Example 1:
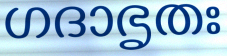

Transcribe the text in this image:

ഗദാഭൃതഃ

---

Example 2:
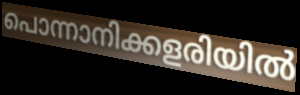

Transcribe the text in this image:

പൊന്നാനിക്കളരിയിൽ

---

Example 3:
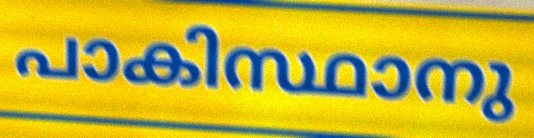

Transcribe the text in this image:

പാകിസ്ഥാനു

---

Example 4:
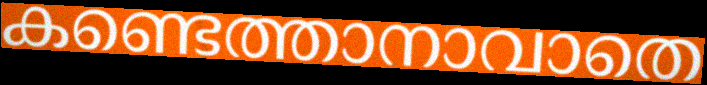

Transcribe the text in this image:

കണ്ടെത്താനാവാതെ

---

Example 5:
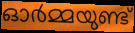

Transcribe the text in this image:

ഓർമ്മയുണ്ട്